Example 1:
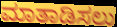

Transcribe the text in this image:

ಮಾತಾಡಿಸಲು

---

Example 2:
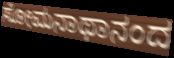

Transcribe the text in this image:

ಸೋಮನಾಥಾನಂದ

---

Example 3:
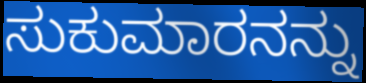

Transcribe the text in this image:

ಸುಕುಮಾರನನ್ನು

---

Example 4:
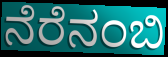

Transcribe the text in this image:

ನೆರೆನಂಬಿ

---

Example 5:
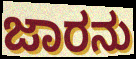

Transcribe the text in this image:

ಜಾರನು